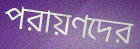
পরায়ণদের